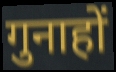
गुनाहों